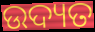
ଉଦ୍ୟତ